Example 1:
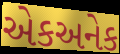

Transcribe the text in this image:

એકઅનેક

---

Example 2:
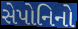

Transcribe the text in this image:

સેપોનિનો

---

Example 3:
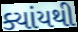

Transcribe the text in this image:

ક્યાંયથી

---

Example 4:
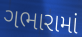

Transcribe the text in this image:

ગભારામાં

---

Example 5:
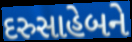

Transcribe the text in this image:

દરુસાહેબને